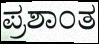
ಪ್ರಶಾಂತ